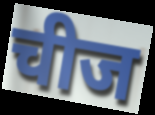
चीज